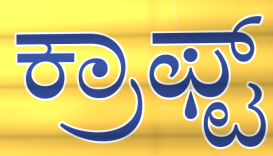
ಕ್ರಾಫ್ಟ್